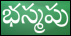
భస్మపు